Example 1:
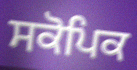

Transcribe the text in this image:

ਸਕੋਪਿਕ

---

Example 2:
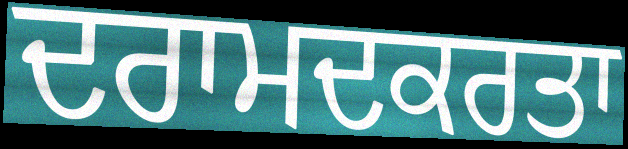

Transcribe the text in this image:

ਦਰਾਮਦਕਰਤਾ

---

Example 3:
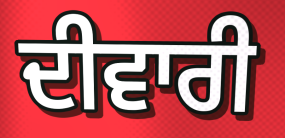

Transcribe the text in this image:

ਦੀਵਾਰੀ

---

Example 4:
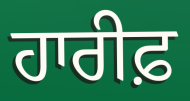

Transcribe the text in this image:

ਹਾਰੀਫ਼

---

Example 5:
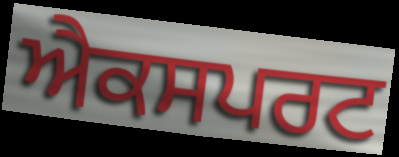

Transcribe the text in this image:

ਐਕਸਪਰਟ